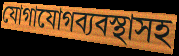
যোগাযোগব্যবস্থাসহ